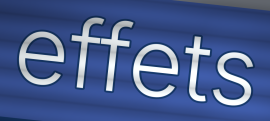
effets